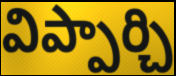
విప్పార్చి